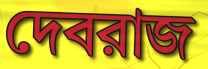
দেবরাজ